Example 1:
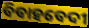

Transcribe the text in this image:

ବିବାହବେଦୀ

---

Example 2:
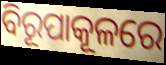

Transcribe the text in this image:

ବିରୂପାକୂଳରେ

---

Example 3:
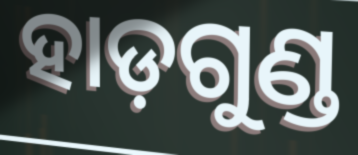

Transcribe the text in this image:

ହାଡ଼ଗୁଣ୍ଡ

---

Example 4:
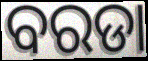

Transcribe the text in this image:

ବରଡା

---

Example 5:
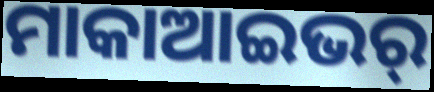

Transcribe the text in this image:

ମାକାଆଇଭର୍